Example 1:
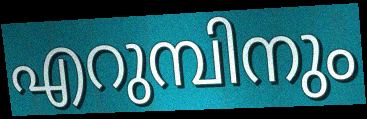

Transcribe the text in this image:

എറുമ്പിനും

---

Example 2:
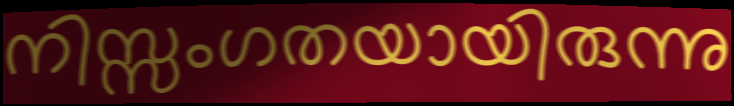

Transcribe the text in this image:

നിസ്സംഗതയായിരുന്നു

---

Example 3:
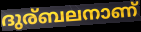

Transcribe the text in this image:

ദുര്ബലനാണ്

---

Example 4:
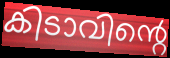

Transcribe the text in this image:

കിടാവിന്റെ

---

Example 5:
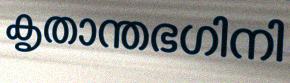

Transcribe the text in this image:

കൃതാന്തഭഗിനി